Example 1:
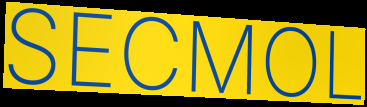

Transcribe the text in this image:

SECMOL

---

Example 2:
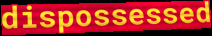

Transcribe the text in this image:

dispossessed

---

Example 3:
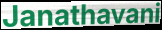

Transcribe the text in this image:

Janathavani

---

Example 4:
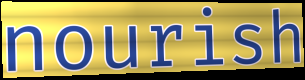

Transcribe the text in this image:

nourish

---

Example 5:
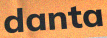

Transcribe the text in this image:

danta